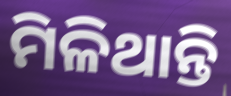
ମିଳିଥାନ୍ତି